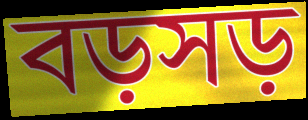
বড়সড়